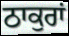
ਠਾਕੁਰਾਂ